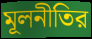
মূলনীতির